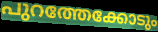
പുറത്തേക്കോടും